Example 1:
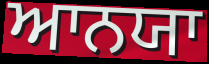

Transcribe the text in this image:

ਆਨਯਾ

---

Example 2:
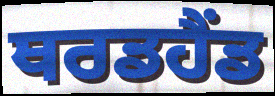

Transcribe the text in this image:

ਥਰਡਹੈਂਡ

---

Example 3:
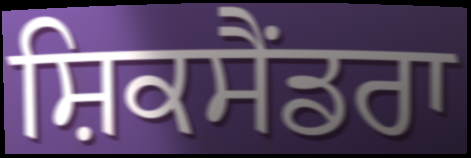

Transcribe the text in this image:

ਸ਼ਿਕਸੈਂਡਰਾ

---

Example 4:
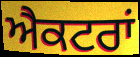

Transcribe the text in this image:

ਐਕਟਰਾਂ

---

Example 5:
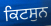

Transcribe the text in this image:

ਕਿਟਸੁਨ